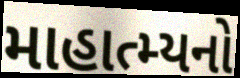
માહાત્મ્યનો